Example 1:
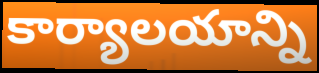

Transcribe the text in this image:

కార్యాలయాన్ని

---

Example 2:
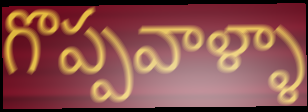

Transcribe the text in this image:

గొప్పవాళ్ళా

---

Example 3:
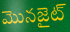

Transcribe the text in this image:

మొనజైట్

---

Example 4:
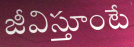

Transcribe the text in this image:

జీవిస్తూంటే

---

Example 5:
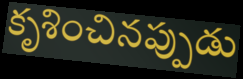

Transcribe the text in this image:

కృశించినప్పుడు